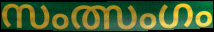
സംത്സംഗം